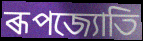
ৰূপজ্যোতি